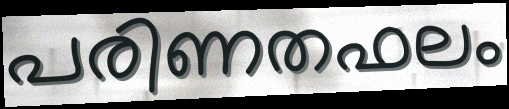
പരിണതഫലം